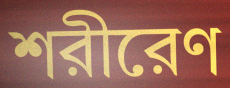
শরীরেণ